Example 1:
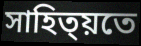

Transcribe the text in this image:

সাহিত্য়তে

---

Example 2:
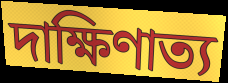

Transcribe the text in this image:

দাক্ষিণাত্য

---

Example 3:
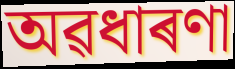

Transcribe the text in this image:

অৱধাৰণা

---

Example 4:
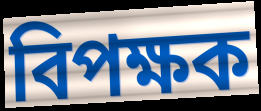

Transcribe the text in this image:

বিপক্ষক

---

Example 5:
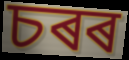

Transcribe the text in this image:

চৰৰ